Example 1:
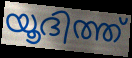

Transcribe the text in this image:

യൂദിത്ത്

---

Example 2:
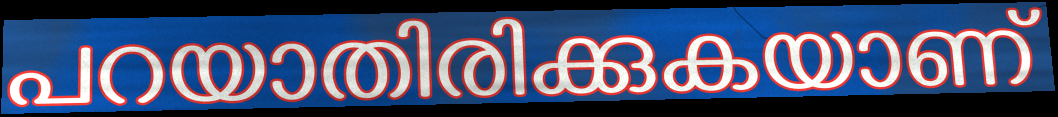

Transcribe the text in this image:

പറയാതിരിക്കുകയാണ്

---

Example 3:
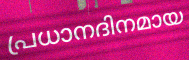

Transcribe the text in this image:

പ്രധാനദിനമായ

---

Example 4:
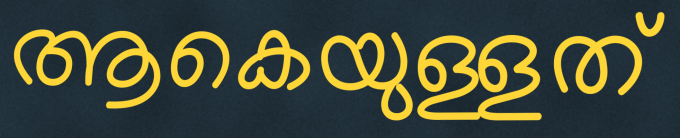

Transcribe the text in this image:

ആകെയുള്ളത്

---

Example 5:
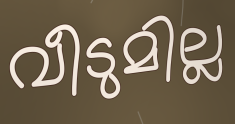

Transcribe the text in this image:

വീടുമില്ല